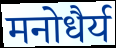
मनोधैर्य